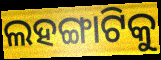
ଲହଙ୍ଗାଟିକୁ